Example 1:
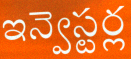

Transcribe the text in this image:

ఇన్వెస్టర్ల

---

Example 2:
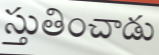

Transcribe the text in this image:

స్తుతించాడు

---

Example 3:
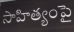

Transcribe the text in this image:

సాహిత్యంపై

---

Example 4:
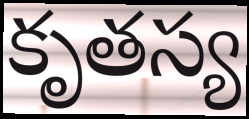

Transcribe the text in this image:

కృతస్య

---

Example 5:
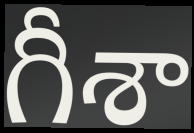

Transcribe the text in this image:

గీశా